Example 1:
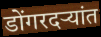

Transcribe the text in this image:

डोंगरदऱ्यांत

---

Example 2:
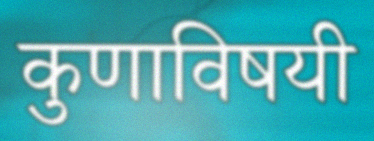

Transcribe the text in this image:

कुणाविषयी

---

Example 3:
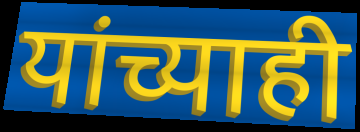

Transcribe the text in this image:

यांच्याही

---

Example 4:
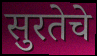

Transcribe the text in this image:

सुरतेचे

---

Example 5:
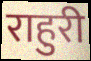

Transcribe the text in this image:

राहुरी